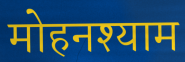
मोहनश्याम